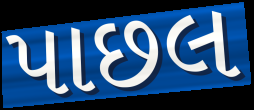
પાછલ